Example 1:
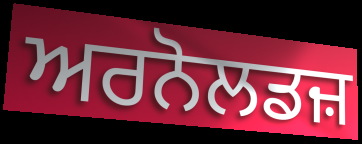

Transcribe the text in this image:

ਅਰਨੋਲਡਜ਼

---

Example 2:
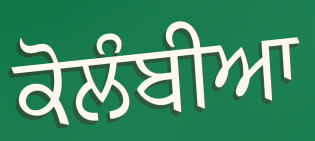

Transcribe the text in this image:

ਕੋਲੰਬੀਆ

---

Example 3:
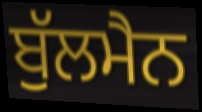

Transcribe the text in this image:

ਬੁੱਲਮੈਨ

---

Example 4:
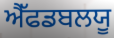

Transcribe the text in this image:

ਐੱਫਡਬਲਯੂ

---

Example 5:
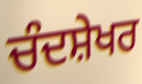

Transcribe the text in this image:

ਚੰਦਸ਼ੇਖਰ